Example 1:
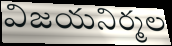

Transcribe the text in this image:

విజయనిర్మల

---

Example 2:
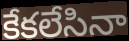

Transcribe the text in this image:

కేకలేసినా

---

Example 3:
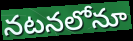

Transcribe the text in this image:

నటనలోనూ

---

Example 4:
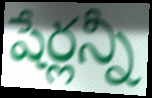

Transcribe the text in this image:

షేర్లన్నీ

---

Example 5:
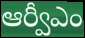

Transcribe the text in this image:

ఆర్వీఎం